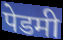
पेडमी